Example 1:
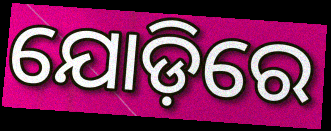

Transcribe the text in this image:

ଯୋଡ଼ିରେ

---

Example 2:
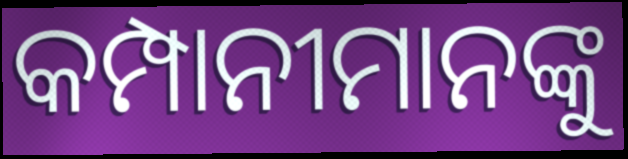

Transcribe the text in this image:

କମ୍ପାନୀମାନଙ୍କୁ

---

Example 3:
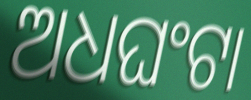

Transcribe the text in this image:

ଅଧଘଂଟା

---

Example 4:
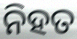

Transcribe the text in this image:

ନିହତ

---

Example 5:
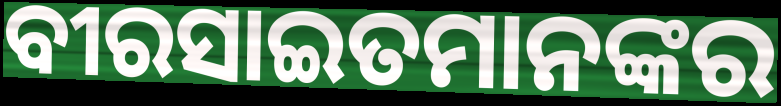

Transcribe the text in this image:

ବୀରସାଇତମାନଙ୍କର